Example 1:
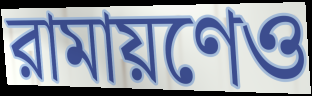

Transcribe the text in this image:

রামায়ণেও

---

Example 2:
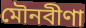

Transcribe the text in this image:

মৌনবীণা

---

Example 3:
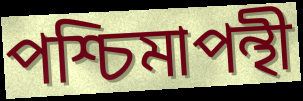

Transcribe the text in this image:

পশ্চিমাপন্থী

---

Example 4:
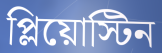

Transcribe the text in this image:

প্লিয়োস্টিন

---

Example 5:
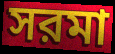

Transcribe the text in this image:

সরমা